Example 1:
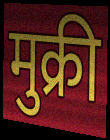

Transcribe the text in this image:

मुक्री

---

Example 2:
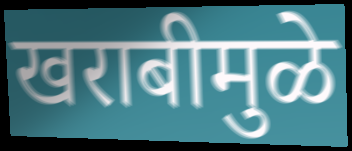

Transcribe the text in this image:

खराबीमुळे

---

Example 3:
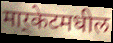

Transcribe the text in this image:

मार्केटमधील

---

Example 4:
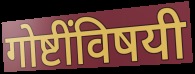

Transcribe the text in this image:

गोष्टींविषयी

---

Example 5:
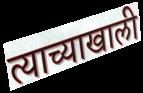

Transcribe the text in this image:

त्याच्याखाली